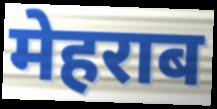
मेहराब